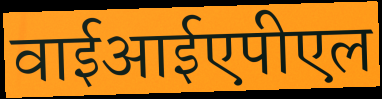
वाईआईएपीएल